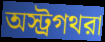
অস্ট্রগথরা